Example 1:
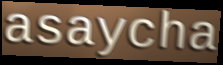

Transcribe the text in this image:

asaycha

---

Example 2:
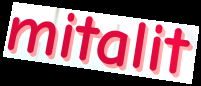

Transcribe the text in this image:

mitalit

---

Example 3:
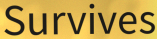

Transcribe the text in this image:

Survives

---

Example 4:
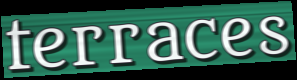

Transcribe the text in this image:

terraces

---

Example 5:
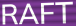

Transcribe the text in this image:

RAFT